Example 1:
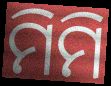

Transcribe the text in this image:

ମିମି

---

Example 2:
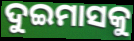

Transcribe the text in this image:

ଦୁଇମାସକୁ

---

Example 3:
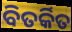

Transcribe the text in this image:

ବିତର୍କିତ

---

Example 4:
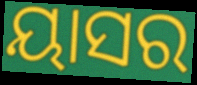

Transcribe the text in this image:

ୟାସର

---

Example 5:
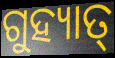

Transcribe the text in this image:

ଗୁହ୍ୟାତ୍